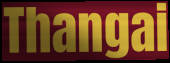
Thangai